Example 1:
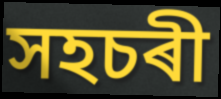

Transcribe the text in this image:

সহচৰী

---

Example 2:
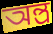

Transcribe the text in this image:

অন্ত্ৰ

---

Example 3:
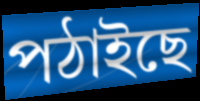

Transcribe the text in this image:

পঠাইছে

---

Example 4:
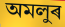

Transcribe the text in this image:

অমলুৰ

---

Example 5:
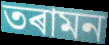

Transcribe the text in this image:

তৰামন